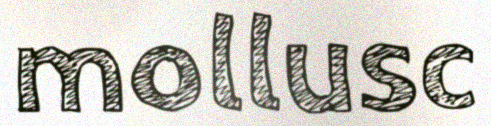
mollusc